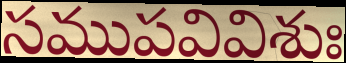
సముపవివిశుః